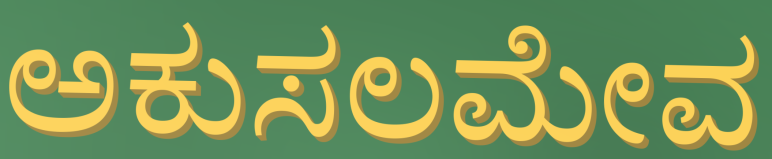
ಅಕುಸಲಮೇವ